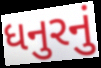
ધનુરનું